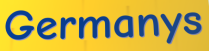
Germanys